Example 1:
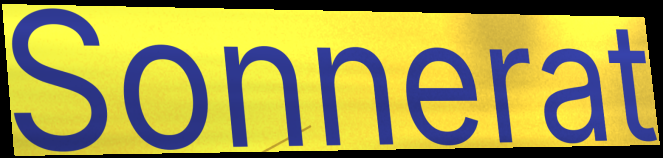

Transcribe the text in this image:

Sonnerat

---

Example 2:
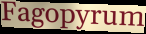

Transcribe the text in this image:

Fagopyrum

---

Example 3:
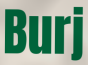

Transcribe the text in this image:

Burj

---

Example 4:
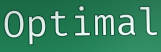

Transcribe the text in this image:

Optimal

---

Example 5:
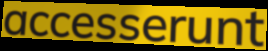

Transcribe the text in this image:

accesserunt